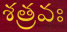
శత్రవః